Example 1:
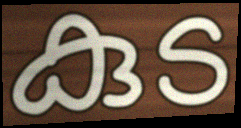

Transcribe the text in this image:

കുട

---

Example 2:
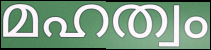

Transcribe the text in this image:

മഹത്വം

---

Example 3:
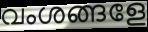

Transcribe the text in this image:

വംശങ്ങളേ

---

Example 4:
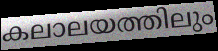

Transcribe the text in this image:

കലാലയത്തിലും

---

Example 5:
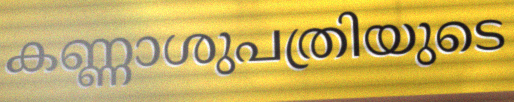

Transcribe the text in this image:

കണ്ണാശുപത്രിയുടെ